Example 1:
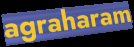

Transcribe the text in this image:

agraharam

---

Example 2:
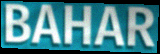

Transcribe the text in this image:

BAHAR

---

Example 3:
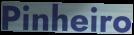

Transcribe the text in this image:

Pinheiro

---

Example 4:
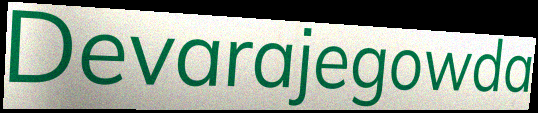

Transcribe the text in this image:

Devarajegowda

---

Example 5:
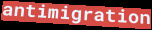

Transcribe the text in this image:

antimigration